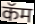
कॅम